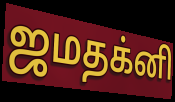
ஜமதக்னி